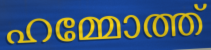
ഹമ്മോത്ത്